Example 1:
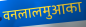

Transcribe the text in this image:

वनलालमुआका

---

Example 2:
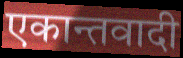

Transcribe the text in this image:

एकान्तवादी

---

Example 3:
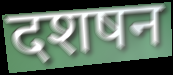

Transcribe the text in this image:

दशषन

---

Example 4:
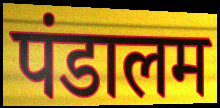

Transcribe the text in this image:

पंडालम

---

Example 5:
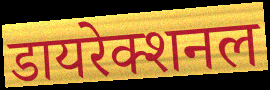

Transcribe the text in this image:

डायरेक्शनल